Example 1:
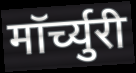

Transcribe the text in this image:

मॉर्च्युरी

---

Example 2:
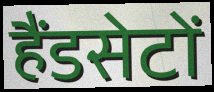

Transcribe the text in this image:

हैंडसेटों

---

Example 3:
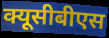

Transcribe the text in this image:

क्यूसीबीएस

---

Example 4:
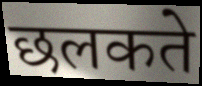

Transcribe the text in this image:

छलकते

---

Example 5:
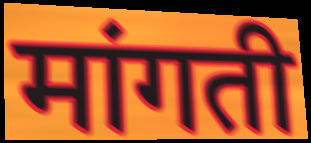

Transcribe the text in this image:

मांगती